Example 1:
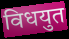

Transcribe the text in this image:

विधयुत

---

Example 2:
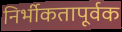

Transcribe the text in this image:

निर्भीकतापूर्वक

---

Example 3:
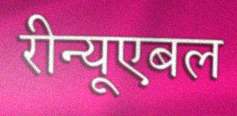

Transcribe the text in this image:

रीन्यूएबल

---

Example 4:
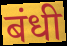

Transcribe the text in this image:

बंधी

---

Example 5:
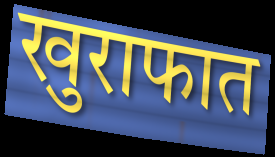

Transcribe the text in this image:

खुराफात